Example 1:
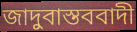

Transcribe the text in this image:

জাদুবাস্তববাদী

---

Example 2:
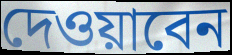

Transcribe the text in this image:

দেওয়াবেন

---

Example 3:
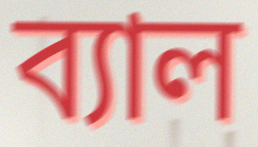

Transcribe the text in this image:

ব্যাল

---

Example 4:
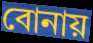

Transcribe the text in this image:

বোনায়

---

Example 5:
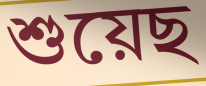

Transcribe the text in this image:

শুয়েছ